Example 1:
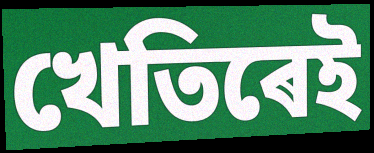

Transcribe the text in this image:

খেতিৰেই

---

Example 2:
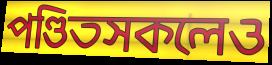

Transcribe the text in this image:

পণ্ডিতসকলেও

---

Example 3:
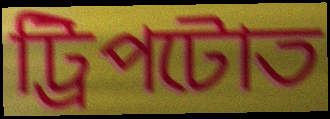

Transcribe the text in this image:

ট্ৰিপটোত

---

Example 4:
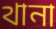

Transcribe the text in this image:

থানা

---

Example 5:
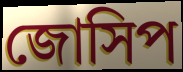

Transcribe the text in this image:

জোসিপ